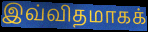
இவ்விதமாகக்